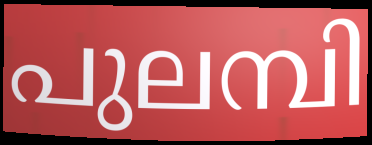
പുലമ്പി